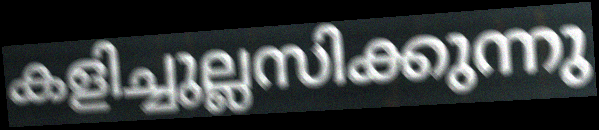
കളിച്ചുല്ലസിക്കുന്നു